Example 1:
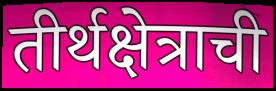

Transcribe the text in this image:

तीर्थक्षेत्राची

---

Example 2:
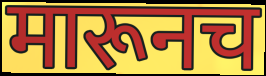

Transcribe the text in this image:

मारूनच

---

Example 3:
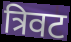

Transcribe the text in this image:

त्रिवट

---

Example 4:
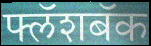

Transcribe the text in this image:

फ्लॅशबॅक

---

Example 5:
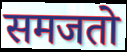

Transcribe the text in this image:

समजतो